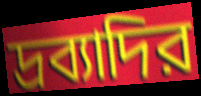
দ্রব্যাদির